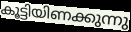
കൂട്ടിയിണക്കുന്നു